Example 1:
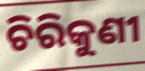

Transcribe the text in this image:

ଚିରିକୁଣୀ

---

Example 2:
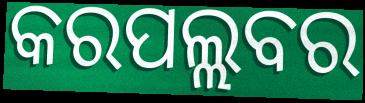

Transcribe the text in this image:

କରପଲ୍ଲବର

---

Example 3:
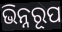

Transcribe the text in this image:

ଭିନ୍ନରୂପ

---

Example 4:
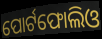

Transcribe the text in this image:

ପୋର୍ଟଫୋଲିଓ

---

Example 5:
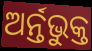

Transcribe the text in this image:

ଅର୍ନ୍ତଭୁକ୍ତ